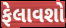
ફેલાવશો